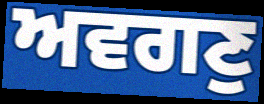
ਅਵਗਣੁ